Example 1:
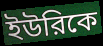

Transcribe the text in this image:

ইউরিকে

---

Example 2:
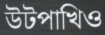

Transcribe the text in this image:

উটপাখিও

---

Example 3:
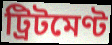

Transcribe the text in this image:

ট্রিটমেণ্ট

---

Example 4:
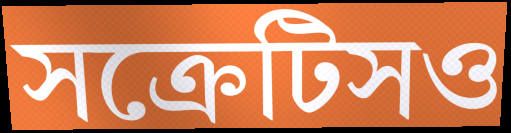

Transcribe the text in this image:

সক্রেটিসও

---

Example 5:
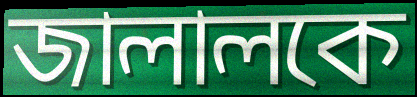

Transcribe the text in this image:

জালালকে